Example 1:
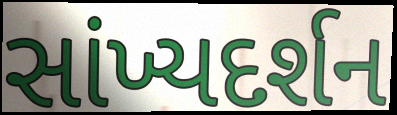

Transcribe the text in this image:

સાંખ્યદર્શન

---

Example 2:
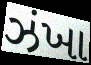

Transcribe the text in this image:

ઝંખા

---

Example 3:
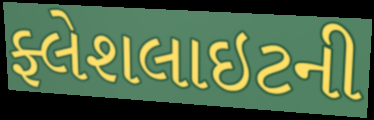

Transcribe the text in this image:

ફ્લેશલાઇટની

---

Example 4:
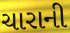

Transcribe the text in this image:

ચારાની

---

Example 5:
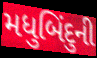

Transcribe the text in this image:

મધુબિંદુની